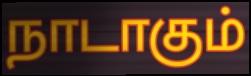
நாடாகும்